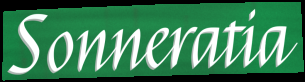
Sonneratia